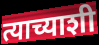
त्याच्याशी